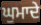
ਘੁਮਾਦੇ